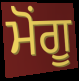
ਮੋਂਗੂ